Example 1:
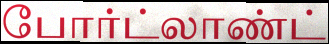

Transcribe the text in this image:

போர்ட்லாண்ட்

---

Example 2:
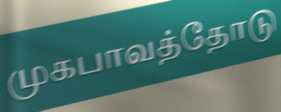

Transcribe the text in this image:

முகபாவத்தோடு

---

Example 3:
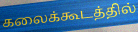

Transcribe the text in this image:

கலைக்கூடத்தில்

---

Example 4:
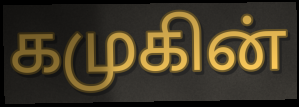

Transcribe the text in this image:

கமுகின்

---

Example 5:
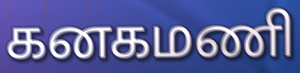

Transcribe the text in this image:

கனகமணி